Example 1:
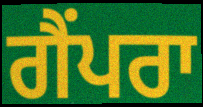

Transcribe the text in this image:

ਗੈਂਪਰਾ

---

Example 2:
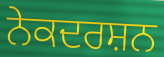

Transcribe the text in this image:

ਨੇਕਦਰਸ਼ਨ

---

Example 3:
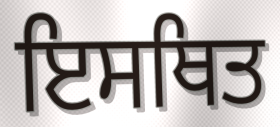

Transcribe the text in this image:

ਇਸਥਿਤ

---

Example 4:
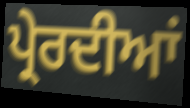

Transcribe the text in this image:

ਪ੍ਰੇਰਦੀਆਂ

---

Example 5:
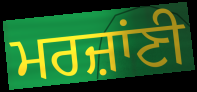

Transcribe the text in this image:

ਮਰਜ਼ਾਂਣੀ